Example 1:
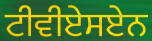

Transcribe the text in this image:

ਟੀਵੀਏਸਏਨ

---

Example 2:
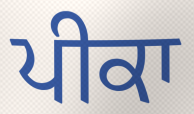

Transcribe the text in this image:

ਪੀਕਾ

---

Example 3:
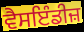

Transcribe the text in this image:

ਵੈਸਇੰਡੀਜ਼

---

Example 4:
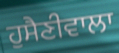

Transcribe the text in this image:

ਹੁਸੈਣੀਵਾਲਾ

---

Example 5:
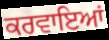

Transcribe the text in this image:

ਕਰਵਾਇਆਂ